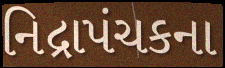
નિદ્રાપંચકના